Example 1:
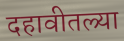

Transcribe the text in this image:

दहावीतल्या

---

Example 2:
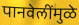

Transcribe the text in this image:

पानवेलींमुळे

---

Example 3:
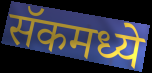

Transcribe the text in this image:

सॅकमध्ये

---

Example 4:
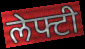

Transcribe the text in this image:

लेफ्टी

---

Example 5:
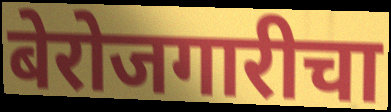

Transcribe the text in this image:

बेरोजगारीचा